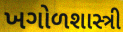
ખગોળશાસ્ત્રી